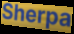
Sherpa